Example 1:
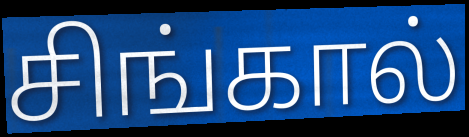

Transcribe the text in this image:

சிங்கால்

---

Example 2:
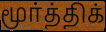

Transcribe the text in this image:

மூர்த்திக்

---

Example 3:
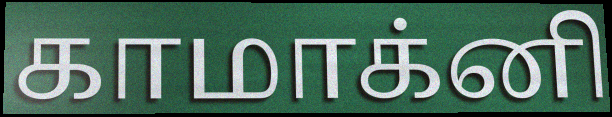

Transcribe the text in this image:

காமாக்னி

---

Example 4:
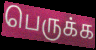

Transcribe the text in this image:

பெருக்க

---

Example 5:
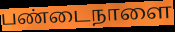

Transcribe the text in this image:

பண்டைநாளை